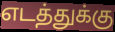
எடத்துக்கு